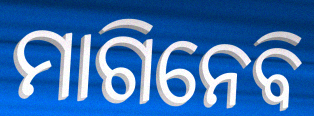
ମାଗିନେବି